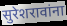
सुरेशरावांना